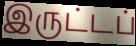
இருட்டப்